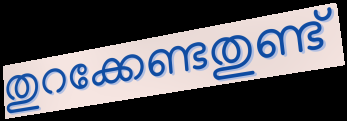
തുറക്കേണ്ടതുണ്ട്